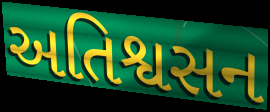
અતિશ્વસન